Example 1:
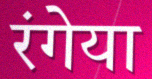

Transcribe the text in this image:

रंगेया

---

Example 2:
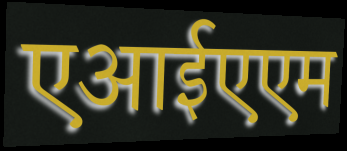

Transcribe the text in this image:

एआईएएम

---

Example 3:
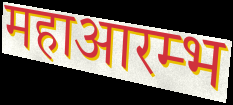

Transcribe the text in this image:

महाआरम्भ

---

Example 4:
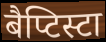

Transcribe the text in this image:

बैप्टिस्टा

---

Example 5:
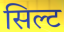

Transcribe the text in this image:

सिल्ट